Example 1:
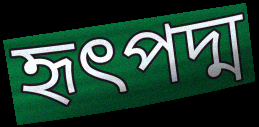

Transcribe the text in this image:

হৃৎপদ্ম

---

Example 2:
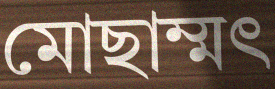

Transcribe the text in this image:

মোছাম্মৎ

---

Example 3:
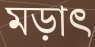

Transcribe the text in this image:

মড়াৎ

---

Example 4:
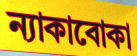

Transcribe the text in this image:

ন্যাকাবোকা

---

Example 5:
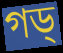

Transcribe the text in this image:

গড্